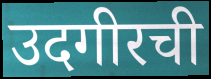
उदगीरची